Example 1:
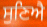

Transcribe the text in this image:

ਸੁਣਿਐ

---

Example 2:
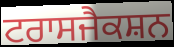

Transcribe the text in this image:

ਟਰਾਸਜੈਕਸ਼ਨ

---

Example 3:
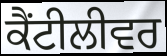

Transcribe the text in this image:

ਕੈਂਟੀਲੀਵਰ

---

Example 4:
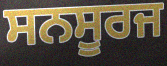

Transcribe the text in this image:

ਸਨਸੂਰਜ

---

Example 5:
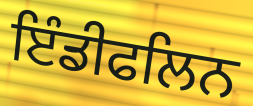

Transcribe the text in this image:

ਇੰਡੀਫਲਿਨ